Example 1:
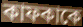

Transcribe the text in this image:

কাফকাকে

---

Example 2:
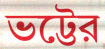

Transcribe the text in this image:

ভট্টের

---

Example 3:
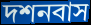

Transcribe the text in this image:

দশনবাস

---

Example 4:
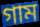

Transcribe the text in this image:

গাম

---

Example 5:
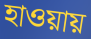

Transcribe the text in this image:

হাওয়ায়